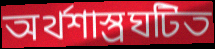
অর্থশাস্ত্রঘটিত